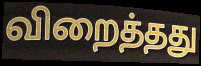
விறைத்தது